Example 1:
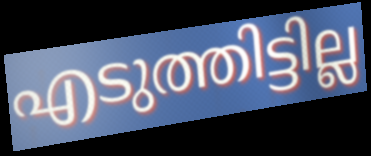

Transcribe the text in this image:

എടുത്തിട്ടില്ല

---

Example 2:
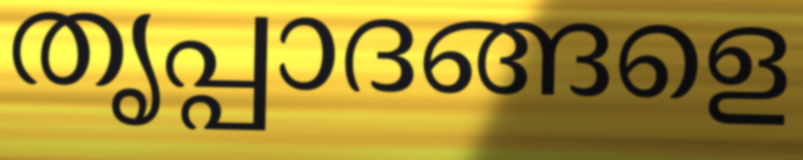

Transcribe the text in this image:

തൃപ്പാദങ്ങളെ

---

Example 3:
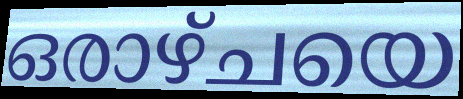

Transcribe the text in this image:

ഒരാഴ്ചയെ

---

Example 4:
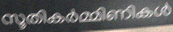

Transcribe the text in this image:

സൂതികർമ്മിണികൾ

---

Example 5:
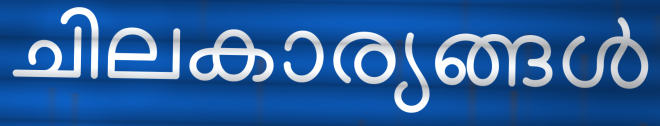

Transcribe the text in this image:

ചിലകാര്യങ്ങൾ